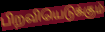
பிறவியெடுக்கும்